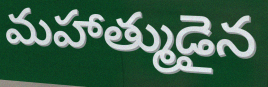
మహాత్ముడైన